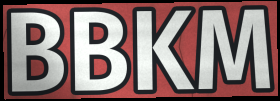
BBKM